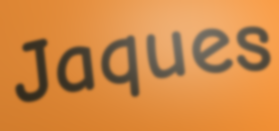
Jaques